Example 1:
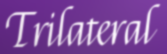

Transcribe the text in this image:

Trilateral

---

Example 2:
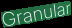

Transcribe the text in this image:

Granular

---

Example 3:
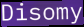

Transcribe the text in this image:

Disomy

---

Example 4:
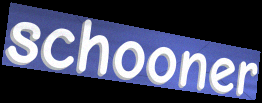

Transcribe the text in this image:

schooner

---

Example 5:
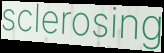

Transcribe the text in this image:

sclerosing